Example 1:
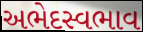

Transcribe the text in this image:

અભેદસ્વભાવ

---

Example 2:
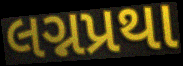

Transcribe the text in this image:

લગ્નપ્રથા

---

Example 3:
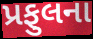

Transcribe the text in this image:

પ્રફુલના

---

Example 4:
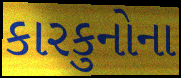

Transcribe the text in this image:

કારકુનોના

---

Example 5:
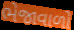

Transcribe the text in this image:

ભેજાવાળો